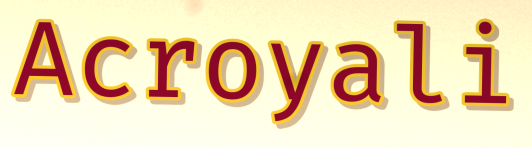
Acroyali